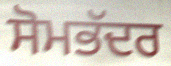
ਸੋਮਭੱਦਰ